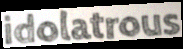
idolatrous